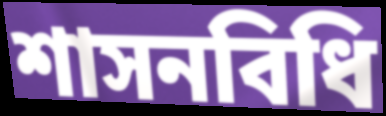
শাসনবিধি